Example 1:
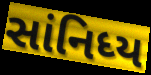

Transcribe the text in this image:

સાંનિધ્ય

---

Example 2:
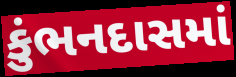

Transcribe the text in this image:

કુંભનદાસમાં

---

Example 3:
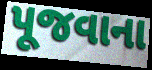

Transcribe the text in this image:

પૂજવાના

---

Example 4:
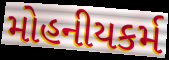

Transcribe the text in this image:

મોહનીયકર્મ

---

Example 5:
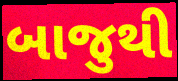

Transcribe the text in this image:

બાજુથી